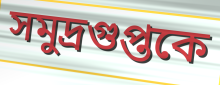
সমুদ্রগুপ্তকে